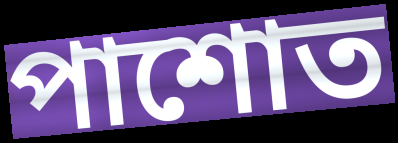
পাশোত